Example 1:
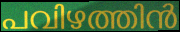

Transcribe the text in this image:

പവിഴത്തിൻ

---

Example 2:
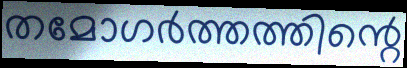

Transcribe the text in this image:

തമോഗർത്തത്തിന്റെ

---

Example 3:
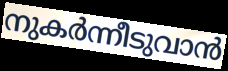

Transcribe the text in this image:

നുകർന്നീടുവാൻ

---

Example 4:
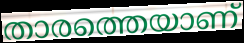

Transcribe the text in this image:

താരത്തെയാണ്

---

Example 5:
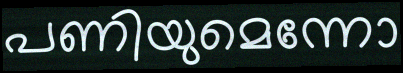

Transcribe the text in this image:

പണിയുമെന്നോ